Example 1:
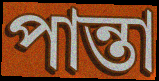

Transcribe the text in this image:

পান্তা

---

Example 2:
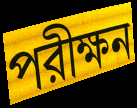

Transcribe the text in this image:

পরীক্ষন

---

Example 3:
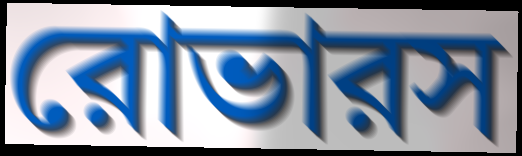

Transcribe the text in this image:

রোভারস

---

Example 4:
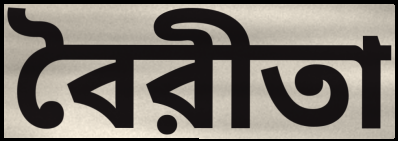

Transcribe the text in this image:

বৈরীতা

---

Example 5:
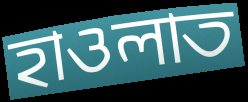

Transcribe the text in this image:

হাওলাত